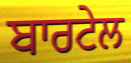
ਬਾਰਟੇਲ